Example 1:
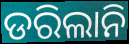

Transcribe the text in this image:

ଡରିଲାନି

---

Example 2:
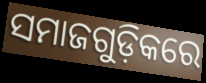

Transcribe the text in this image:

ସମାଜଗୁଡ଼ିକରେ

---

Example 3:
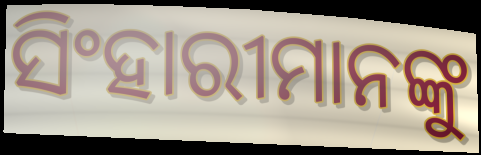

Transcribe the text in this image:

ସିଂହାରୀମାନଙ୍କୁ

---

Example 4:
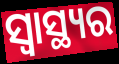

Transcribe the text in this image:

ସ୍ବାସ୍ଥ୍ୟର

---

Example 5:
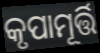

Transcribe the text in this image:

କୃପାମୂର୍ତ୍ତି